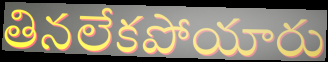
తినలేకపోయారు